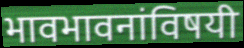
भावभावनांविषयी